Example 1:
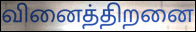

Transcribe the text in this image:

வினைத்திறனை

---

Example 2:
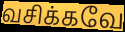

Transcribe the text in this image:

வசிக்கவே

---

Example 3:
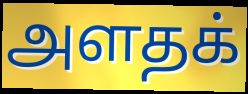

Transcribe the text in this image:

அளதக்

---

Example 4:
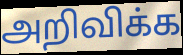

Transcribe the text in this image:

அறிவிக்க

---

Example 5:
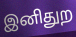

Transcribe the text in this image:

இனிதுற